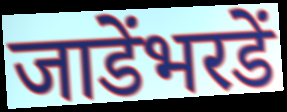
जाडेंभरडें